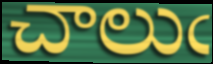
చాలుఁ